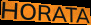
HORATA